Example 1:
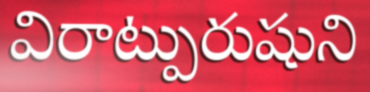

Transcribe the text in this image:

విరాట్పురుషుని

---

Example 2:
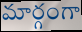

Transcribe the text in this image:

మార్గంగా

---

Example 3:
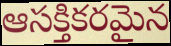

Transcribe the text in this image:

ఆసక్తికరమైన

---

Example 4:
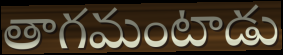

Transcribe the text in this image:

తాగమంటాడు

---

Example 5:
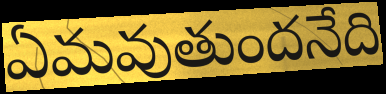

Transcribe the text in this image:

ఏమవుతుందనేది